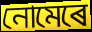
নোমেৰে